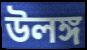
উলঙ্গ